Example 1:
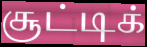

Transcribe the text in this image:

சூட்டிக்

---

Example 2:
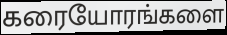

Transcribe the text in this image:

கரையோரங்களை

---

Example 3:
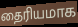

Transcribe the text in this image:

தைரியமாக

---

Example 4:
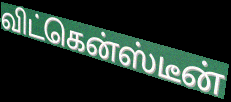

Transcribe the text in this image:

விட்கென்ஸ்டீன்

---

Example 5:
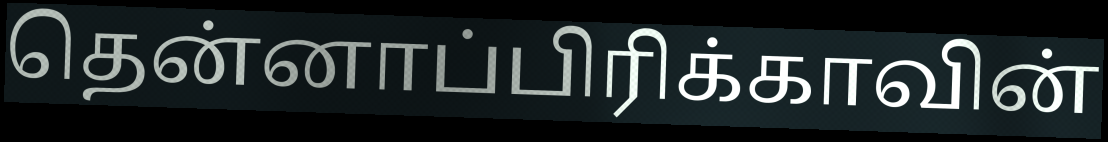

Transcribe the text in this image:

தென்னாப்பிரிக்காவின்